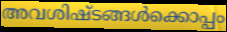
അവശിഷ്ടങ്ങൾക്കൊപ്പം